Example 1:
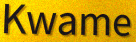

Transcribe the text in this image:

Kwame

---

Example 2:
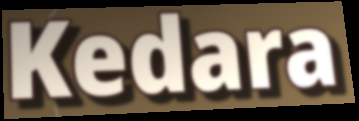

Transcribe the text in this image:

Kedara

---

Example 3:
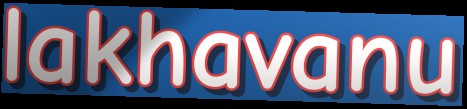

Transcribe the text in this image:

lakhavanu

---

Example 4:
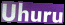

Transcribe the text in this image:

Uhuru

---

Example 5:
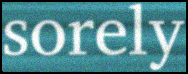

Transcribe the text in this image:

sorely